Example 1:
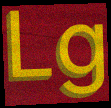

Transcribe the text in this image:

Lg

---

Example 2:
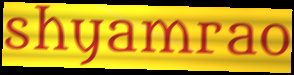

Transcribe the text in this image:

shyamrao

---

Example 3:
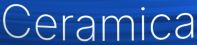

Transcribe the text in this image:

Ceramica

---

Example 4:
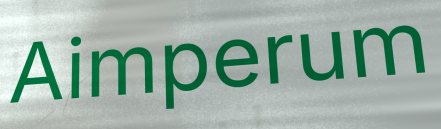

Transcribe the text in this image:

Aimperum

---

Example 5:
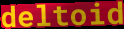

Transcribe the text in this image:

deltoid